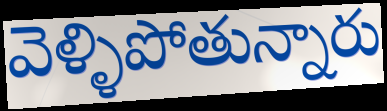
వెళ్ళిపోతున్నారు